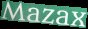
Mazax